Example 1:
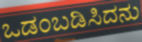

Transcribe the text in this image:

ಒಡಂಬಡಿಸಿದನು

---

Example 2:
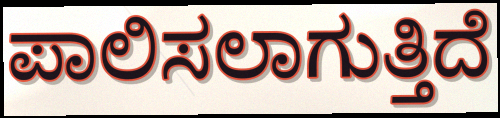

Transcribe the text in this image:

ಪಾಲಿಸಲಾಗುತ್ತಿದೆ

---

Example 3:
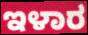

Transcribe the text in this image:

ಇಳಾರ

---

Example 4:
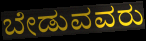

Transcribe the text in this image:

ಬೇಡುವವರು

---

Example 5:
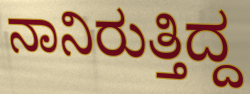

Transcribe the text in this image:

ನಾನಿರುತ್ತಿದ್ದ